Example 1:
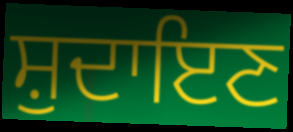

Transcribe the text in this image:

ਸ਼ੁਦਾਇਣ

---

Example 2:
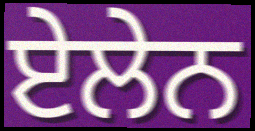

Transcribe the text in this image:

ਏਲੇਨ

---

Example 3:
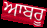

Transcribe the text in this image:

ਆਬਰੂ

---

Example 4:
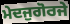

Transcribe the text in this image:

ਮੇਦਜੁਗੋਰਜੇ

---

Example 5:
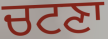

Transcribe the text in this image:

ਚਟਣਾ